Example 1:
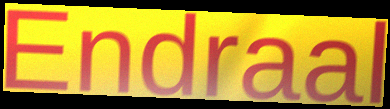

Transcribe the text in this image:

Endraal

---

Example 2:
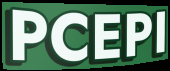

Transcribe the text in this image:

PCEPI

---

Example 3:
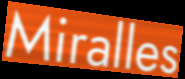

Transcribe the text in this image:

Miralles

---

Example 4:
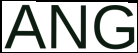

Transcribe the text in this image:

ANG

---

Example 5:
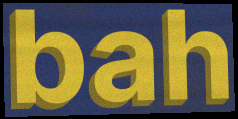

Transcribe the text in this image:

bah